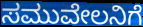
ಸಮುವೇಲನಿಗೆ